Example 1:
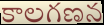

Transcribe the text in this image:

కాలగణన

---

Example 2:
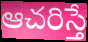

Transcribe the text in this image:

ఆచరిస్తే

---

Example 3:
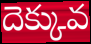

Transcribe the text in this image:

దెక్కువ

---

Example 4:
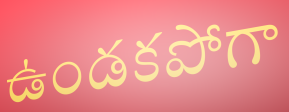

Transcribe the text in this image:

ఉండకపోగా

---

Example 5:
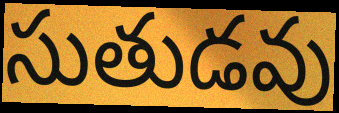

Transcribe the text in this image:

సుతుడవు